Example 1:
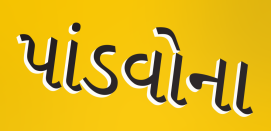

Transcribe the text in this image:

પાંડવોના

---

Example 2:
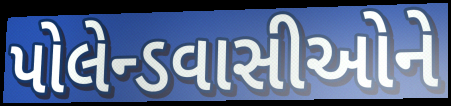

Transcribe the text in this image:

પોલેન્ડવાસીઓને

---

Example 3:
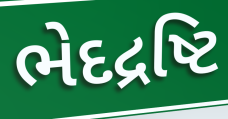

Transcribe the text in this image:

ભેદદ્રષ્ટિ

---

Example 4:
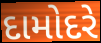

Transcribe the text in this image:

દામોદરે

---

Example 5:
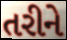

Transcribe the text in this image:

તરીને